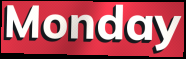
Monday